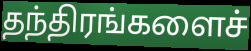
தந்திரங்களைச்